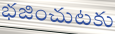
భజించుటకు